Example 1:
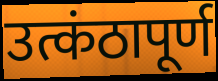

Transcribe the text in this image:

उत्कंठापूर्ण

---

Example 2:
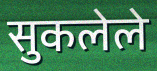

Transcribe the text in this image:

सुकलेले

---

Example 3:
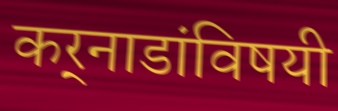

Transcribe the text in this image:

कर्नाडांविषयी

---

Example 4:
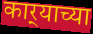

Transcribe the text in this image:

कार्याच्या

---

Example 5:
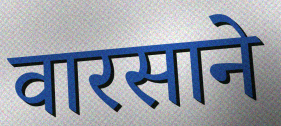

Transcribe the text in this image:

वारसाने